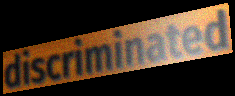
discriminated